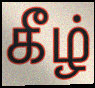
கீழ்